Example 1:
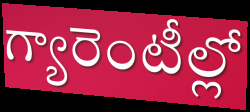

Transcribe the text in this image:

గ్యారెంటీల్లో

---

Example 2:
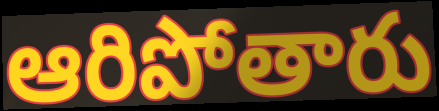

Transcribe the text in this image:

ఆరిపోతారు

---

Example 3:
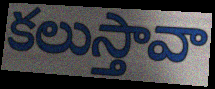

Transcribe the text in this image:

కలుస్తావా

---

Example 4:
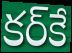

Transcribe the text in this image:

కర్‌కే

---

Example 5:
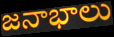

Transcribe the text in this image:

జనాభాలు